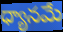
ధ్యానమే